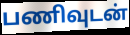
பணிவுடன்